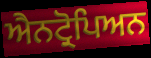
ਐਨਟ੍ਰੋਪਿਅਨ